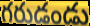
గరుడండు